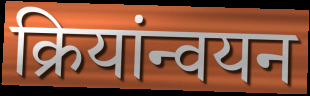
क्रियांन्वयन